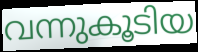
വന്നുകൂടിയ